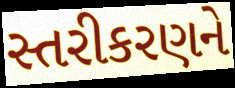
સ્તરીકરણને